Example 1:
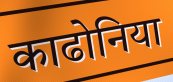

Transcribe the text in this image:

काढोनिया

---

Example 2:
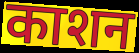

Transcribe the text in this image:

काशन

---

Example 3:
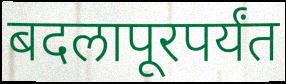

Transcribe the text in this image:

बदलापूरपर्यंत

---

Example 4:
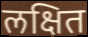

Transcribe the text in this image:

लक्षित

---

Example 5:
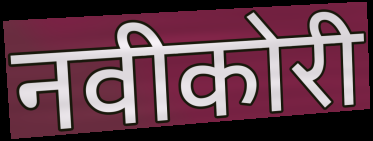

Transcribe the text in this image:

नवीकोरी